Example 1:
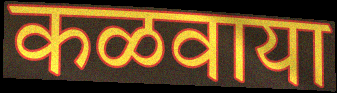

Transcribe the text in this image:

कळवाया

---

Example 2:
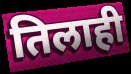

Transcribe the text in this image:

तिलाही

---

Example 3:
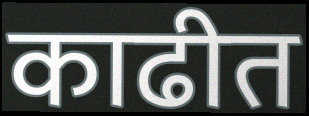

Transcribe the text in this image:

काढीत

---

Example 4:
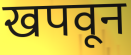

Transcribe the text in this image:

खपवून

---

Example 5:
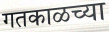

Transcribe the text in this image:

गतकाळच्या